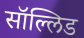
सॉल्लिड